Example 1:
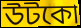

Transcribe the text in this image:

উটকো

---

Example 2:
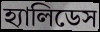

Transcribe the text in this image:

হ্যালিডেস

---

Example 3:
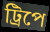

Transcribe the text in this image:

ট্রিপে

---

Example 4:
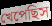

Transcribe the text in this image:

খেপেছিস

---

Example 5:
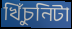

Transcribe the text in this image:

খিঁচুনিটা